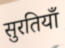
सुरतियाँ